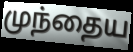
முந்தைய